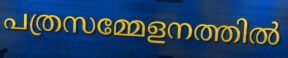
പത്രസമ്മേളനത്തിൽ